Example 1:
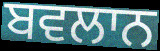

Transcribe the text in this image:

ਬਵਲਾਨ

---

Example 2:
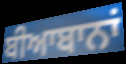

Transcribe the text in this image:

ਬੀਆਬਾਨਾਂ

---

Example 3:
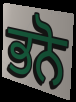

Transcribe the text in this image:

ਭਨੋ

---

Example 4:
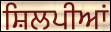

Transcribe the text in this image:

ਸ਼ਿਲਪੀਆਂ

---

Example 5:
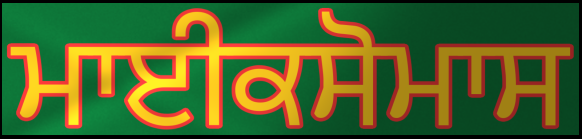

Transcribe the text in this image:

ਮਾਈਕਸੋਮਾਸ